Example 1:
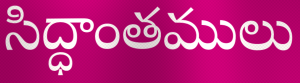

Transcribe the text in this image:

సిద్ధాంతములు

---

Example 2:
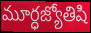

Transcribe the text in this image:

మూర్ధజ్యోతిషి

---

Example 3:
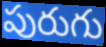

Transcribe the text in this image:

పురుగు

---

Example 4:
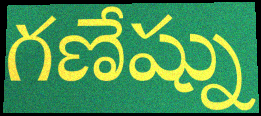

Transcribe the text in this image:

గణేష్ను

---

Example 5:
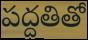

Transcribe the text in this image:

పద్దతితో